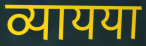
व्यायया